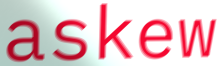
askew